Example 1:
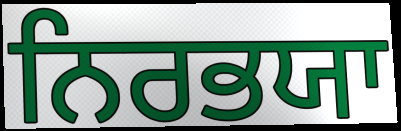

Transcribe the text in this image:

ਨਿਰਭਯਾ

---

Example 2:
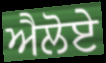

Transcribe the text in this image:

ਐਲੋਏ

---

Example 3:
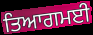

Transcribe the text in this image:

ਤਿਆਗਮਈ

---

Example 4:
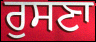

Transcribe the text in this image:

ਰੁਸਣਾ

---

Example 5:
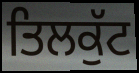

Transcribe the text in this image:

ਤਿਲਕੁੱਟ